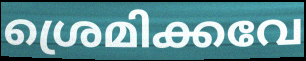
ശ്രെമിക്കവേ